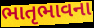
ભાતૃભાવના